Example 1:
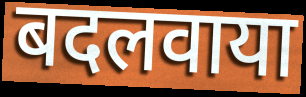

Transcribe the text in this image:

बदलवाया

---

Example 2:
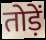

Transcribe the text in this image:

तोड़ें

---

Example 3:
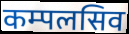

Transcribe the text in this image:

कम्पलसिव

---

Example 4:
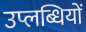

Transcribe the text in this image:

उप्लब्धियों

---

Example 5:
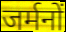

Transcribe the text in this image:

जर्मनों